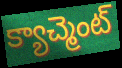
క్యాచ్మెంట్